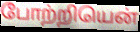
போற்றியென்